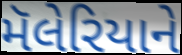
મૅલેરિયાને